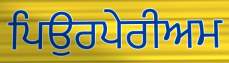
ਪਿਉਰਪੇਰੀਅਮ